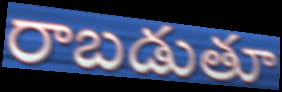
రాబడుతూ